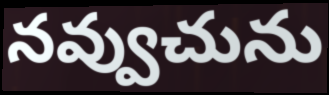
నవ్వుచును